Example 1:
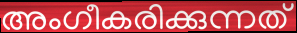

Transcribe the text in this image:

അംഗീകരിക്കുന്നത്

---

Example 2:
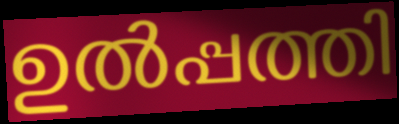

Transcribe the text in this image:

ഉൽപ്പത്തി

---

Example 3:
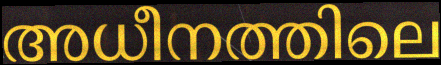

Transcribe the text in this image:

അധീനത്തിലെ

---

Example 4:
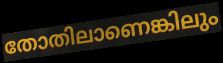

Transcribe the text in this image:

തോതിലാണെങ്കിലും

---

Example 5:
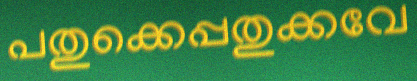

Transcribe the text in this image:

പതുക്കെപ്പതുക്കവേ